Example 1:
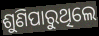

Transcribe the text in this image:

ଶୁଣିପାରୁଥିଲେ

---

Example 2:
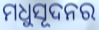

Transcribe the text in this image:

ମଧୁସୂଦନର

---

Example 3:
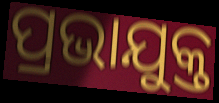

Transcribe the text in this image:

ପ୍ରଭାଯୁକ୍ତ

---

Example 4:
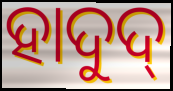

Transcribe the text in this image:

ହାଦୁଦ୍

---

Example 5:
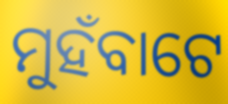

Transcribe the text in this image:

ମୁହଁବାଟେ